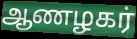
ஆணழகர்